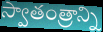
స్వాతంత్రాన్ని